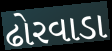
ઢોરવાડા